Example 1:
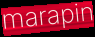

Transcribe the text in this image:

marapin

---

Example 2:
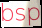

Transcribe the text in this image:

bsp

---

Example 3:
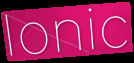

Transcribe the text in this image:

Ionic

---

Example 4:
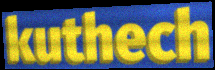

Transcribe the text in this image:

kuthech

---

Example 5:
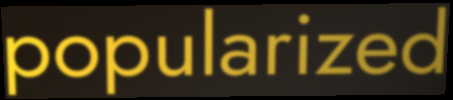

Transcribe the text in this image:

popularized